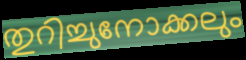
തുറിച്ചുനോക്കലും